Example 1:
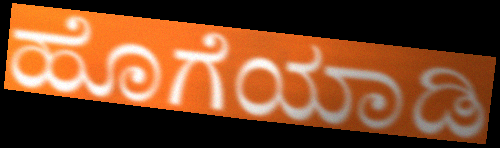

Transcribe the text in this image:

ಹೊಗೆಯಾಡಿ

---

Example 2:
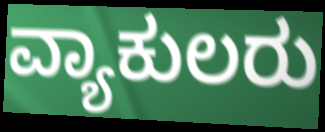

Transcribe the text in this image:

ವ್ಯಾಕುಲರು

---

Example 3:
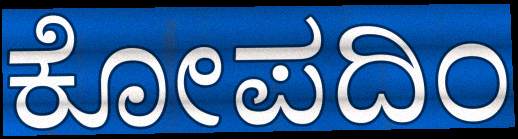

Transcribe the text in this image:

ಕೋಪದಿಂ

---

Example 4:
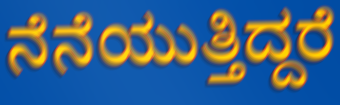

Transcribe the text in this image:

ನೆನೆಯುತ್ತಿದ್ದರೆ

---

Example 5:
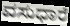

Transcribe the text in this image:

ವಸುಧಾರೆ